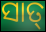
ସାତ୍